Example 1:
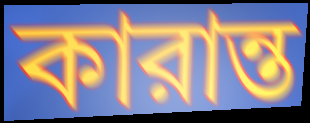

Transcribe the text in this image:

কারান্ত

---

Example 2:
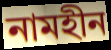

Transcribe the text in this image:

নামহীন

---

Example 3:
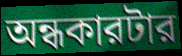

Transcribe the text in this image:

অন্ধকারটার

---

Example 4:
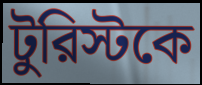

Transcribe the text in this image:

টুরিস্টকে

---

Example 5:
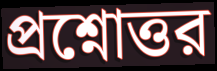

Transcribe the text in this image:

প্রশ্নোত্তর